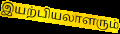
இயற்பியலாளரும்